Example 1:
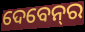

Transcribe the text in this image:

ଦେବେନ୍‌ର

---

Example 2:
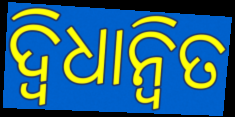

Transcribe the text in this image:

ଦ୍ଵିଧାନ୍ୱିତ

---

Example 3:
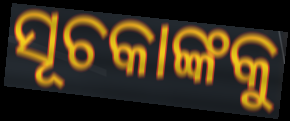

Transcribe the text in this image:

ସୂଚକାଙ୍କକୁ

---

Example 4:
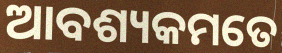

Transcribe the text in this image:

ଆବଶ୍ୟକମତେ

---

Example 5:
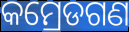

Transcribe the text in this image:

କମ୍ରେଡଗଣ